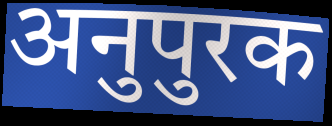
अनुपुरक